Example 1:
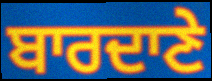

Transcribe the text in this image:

ਬਾਰਦਾਣੇ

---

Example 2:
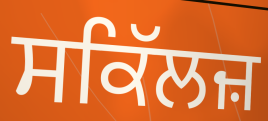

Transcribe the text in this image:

ਸਕਿੱਲਜ਼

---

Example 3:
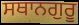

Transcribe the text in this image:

ਸਥਾਨਗੁਰੂ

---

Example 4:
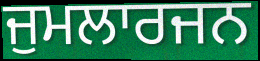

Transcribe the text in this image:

ਜੁਮਲਾਰਜਨ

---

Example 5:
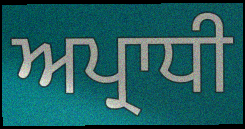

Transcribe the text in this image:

ਅਪ੍ਰਾਧੀ